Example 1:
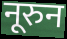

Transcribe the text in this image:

नूरुन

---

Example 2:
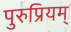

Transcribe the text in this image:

पुरुप्रियम्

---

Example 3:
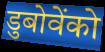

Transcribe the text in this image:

डुबोवेंको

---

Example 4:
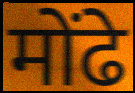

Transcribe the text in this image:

मोंढे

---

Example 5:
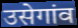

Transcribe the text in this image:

उसेगांव